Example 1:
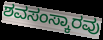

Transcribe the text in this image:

ಶವಸಂಸ್ಕಾರವು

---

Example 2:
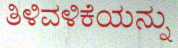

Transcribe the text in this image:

ತಿಳಿವಳಿಕೆಯನ್ನು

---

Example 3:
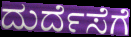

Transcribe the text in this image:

ದುರ್ದೆಸೆಗೆ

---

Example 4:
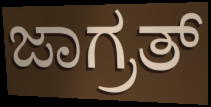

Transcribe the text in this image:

ಜಾಗ್ರತ್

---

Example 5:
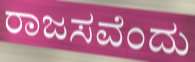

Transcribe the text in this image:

ರಾಜಸವೆಂದು